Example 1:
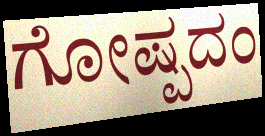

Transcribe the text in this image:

ಗೋಷ್ಪದಂ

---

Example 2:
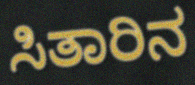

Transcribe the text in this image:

ಸಿತಾರಿನ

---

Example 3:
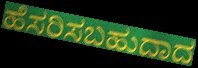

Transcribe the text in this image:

ಹೆಸರಿಸಬಹುದಾದ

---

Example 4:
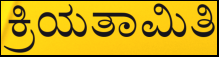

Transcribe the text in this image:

ಕ್ರಿಯತಾಮಿತಿ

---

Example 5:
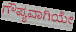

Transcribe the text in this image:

ಗೌಪ್ಯವಾಗಿಯೇ